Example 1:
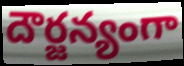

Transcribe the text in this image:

దౌర్జన్యంగా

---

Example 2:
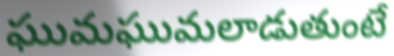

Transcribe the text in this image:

ఘుమఘుమలాడుతుంటే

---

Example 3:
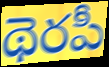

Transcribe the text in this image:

థెరపీ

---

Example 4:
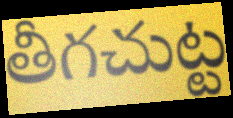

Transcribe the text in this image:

తీగచుట్ట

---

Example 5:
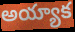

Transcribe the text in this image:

అయ్యాక